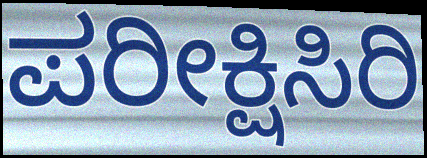
ಪರೀಕ್ಷಿಸಿರಿ